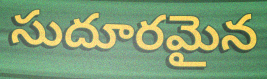
సుదూరమైన